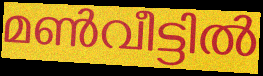
മൺവീട്ടിൽ